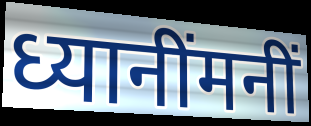
ध्यानींमनीं